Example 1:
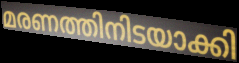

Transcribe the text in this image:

മരണത്തിനിടയാക്കി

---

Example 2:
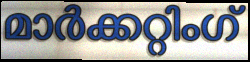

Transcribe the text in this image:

മാർക്കറ്റിംഗ്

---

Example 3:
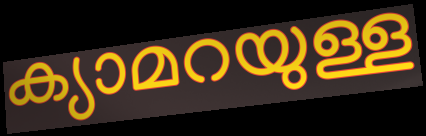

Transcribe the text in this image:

ക്യാമറയുള്ള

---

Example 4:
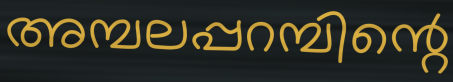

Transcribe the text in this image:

അമ്പലപ്പറമ്പിന്റെ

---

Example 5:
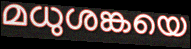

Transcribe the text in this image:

മധുശങ്കയെ